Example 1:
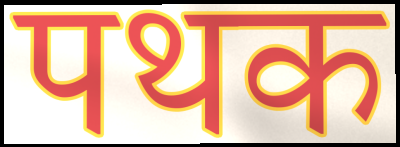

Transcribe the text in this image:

पथक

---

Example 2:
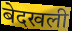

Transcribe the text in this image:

बेदखली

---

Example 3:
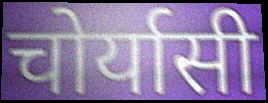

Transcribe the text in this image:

चोर्यासी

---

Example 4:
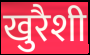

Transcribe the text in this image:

खुरैशी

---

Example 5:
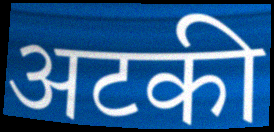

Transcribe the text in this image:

अटकी